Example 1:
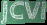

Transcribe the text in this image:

JCVI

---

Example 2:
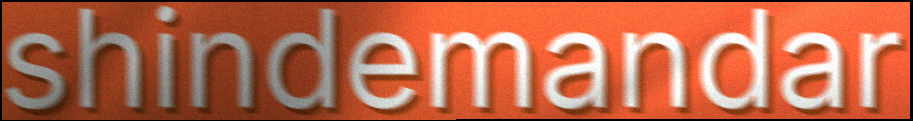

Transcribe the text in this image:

shindemandar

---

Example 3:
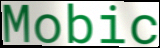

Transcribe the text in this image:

Mobic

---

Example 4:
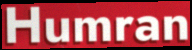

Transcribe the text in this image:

Humran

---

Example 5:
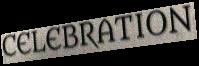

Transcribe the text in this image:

CELEBRATION